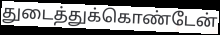
துடைத்துக்கொண்டேன்